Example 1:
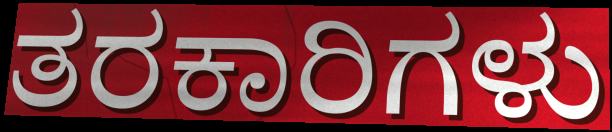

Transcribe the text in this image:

ತರಕಾರಿಗಳು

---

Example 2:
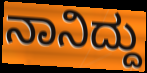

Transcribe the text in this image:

ನಾನಿದ್ದು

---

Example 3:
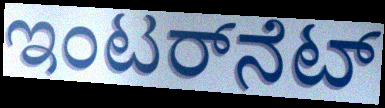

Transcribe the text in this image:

ಇಂಟರ್‌ನೆಟ್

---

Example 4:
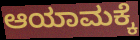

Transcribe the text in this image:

ಆಯಾಮಕ್ಕೆ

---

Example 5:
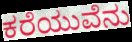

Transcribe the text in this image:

ಕರೆಯುವೆನು